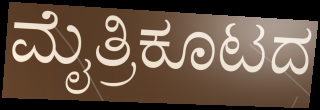
ಮೈತ್ರಿಕೂಟದ